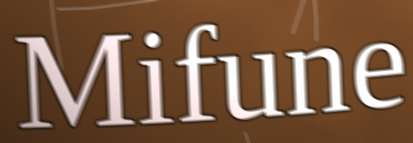
Mifune